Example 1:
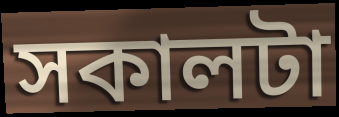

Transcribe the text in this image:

সকালটা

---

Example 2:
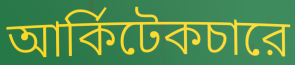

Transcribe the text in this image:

আর্কিটেকচারে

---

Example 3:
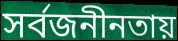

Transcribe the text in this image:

সর্বজনীনতায়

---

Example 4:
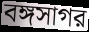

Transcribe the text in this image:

বঙ্গসাগর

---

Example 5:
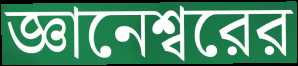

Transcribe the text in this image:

জ্ঞানেশ্বরের